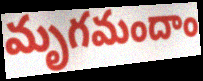
మృగమందాం